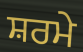
ਸ਼ਰਮੇ